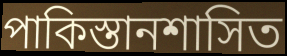
পাকিস্তানশাসিত